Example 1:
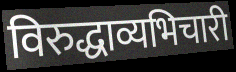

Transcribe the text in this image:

विरुद्धाव्यभिचारी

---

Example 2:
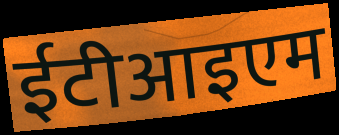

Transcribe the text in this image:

ईटीआइएम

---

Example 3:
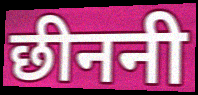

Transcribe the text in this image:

छीननी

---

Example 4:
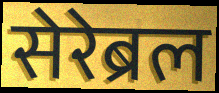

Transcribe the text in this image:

सेरेब्रल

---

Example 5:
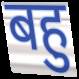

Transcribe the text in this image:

बहु